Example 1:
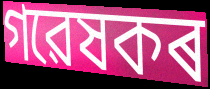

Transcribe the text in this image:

গৱেষকৰ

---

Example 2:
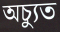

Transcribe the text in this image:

অচ্যুত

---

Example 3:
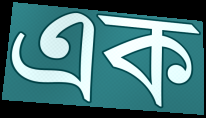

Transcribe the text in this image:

এক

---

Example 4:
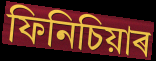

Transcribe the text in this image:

ফিনিচিয়াৰ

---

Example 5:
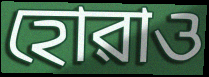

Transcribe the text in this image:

হোৱাও